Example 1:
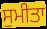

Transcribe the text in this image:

ਸੁਮੀਤਾ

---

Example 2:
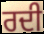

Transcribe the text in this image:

ਰਦੀ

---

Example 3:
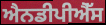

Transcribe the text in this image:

ਐਨਡੀਪੀਐੱਸ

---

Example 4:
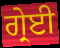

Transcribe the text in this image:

ਗ੍ਰੇਈ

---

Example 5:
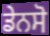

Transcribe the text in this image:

ਡੇਨਸੋ